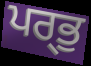
ਪਰ੍ਭੁ